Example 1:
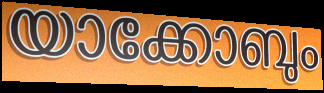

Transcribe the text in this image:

യാക്കോബും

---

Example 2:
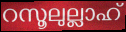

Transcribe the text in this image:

റസൂലുല്ലാഹ്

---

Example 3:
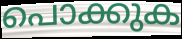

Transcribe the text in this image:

പൊക്കുക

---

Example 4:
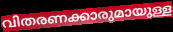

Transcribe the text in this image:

വിതരണക്കാരുമായുള്ള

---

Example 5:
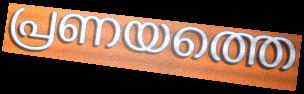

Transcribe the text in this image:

പ്രണയത്തെ